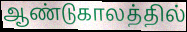
ஆண்டுகாலத்தில்